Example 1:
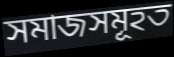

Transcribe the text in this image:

সমাজসমূহত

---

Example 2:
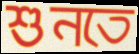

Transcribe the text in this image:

শুনতে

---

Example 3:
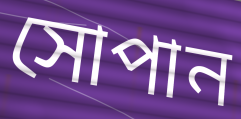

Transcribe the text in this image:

সোপান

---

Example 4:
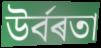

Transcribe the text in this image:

উৰ্বৰতা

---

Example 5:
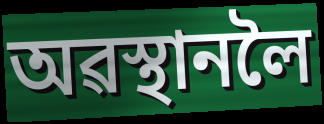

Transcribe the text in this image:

অৱস্থানলৈ